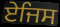
ਏਜਿਸ